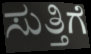
ಸುತ್ತಿಗೆ